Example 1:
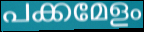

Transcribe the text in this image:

പക്കമേളം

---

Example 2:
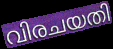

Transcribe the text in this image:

വിരചയതി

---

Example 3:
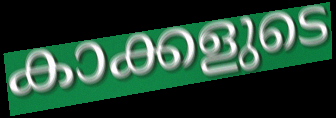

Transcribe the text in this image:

കാക്കളുടെ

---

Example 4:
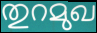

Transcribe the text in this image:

തുറമുഖ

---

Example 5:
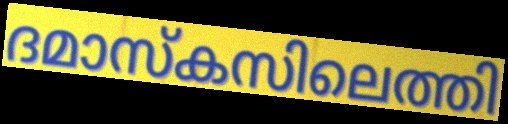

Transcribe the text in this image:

ദമാസ്കസിലെത്തി